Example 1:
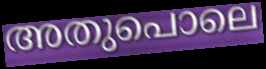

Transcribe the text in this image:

അതുപൊലെ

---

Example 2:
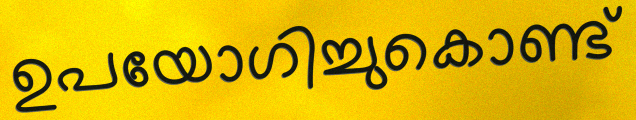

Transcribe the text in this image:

ഉപയോഗിച്ചുകൊണ്ട്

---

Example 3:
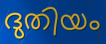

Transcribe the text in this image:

ദുതിയം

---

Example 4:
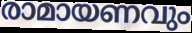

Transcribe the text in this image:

രാമായണവും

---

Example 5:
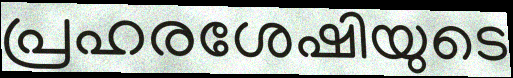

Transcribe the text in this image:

പ്രഹരശേഷിയുടെ